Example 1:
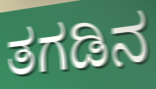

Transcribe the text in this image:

ತಗಡಿನ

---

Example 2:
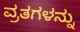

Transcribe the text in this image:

ವ್ರತಗಳನ್ನು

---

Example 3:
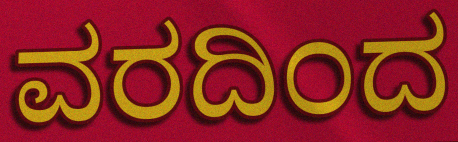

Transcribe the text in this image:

ವರದಿಂದ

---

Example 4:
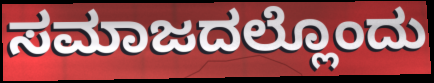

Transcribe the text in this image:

ಸಮಾಜದಲ್ಲೊಂದು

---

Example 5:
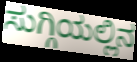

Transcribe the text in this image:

ಸುಗ್ಗಿಯಲ್ಲಿನ